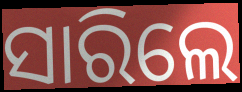
ସାରିଲେ